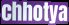
chhotya